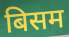
बिसम